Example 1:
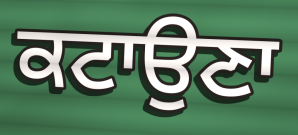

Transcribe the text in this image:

ਕਟਾਉਣਾ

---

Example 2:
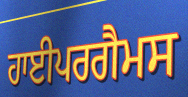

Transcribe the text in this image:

ਹਾਈਪਰਗੈਮਸ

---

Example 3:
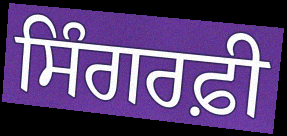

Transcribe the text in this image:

ਸਿੰਗਰਫ਼ੀ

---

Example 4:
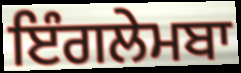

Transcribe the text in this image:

ਇੰਗਲੇਮਬਾ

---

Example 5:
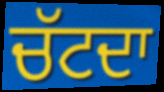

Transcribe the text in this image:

ਚੱਟਦਾ